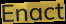
Enact